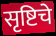
सृष्टिचे